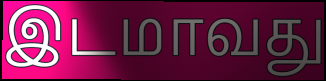
இடமாவது